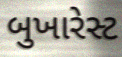
બુખારેસ્ટ